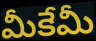
మీకేమీ